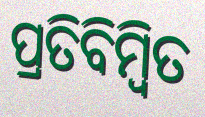
ପ୍ରତିବିମ୍ବିତ